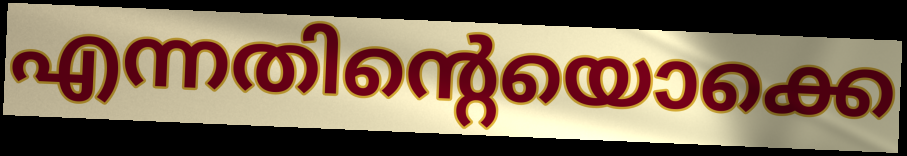
എന്നതിന്റെയൊക്കെ